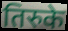
तिरुके